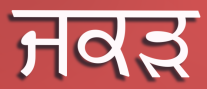
ਜਕਡ਼